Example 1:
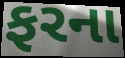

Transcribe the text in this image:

ફરના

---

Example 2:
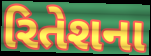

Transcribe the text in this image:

રિતેશના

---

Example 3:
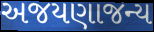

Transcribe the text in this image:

અજયણાજન્ય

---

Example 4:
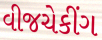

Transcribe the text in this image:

વીજચેકીંગ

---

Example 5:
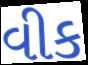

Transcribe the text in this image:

વીક